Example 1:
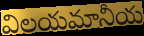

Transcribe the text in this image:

విలయమానీయ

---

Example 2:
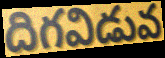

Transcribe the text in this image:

దిగవిడువ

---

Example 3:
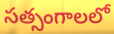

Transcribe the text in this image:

సత్సంగాలలో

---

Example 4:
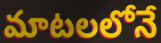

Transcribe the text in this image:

మాటలలోనే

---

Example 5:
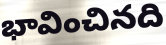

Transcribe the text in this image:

భావించినది